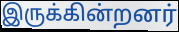
இருக்கின்றனர்